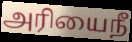
அரியைநீ